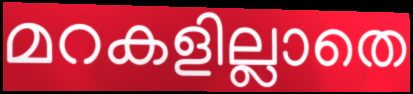
മറകളില്ലാതെ